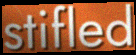
stifled